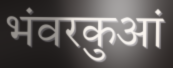
भंवरकुआं